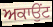
ਅਕਾਉਂਟ